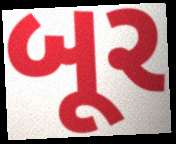
બૂર